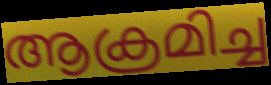
ആക്രമിച്ച